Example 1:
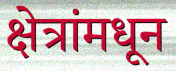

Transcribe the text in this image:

क्षेत्रांमधून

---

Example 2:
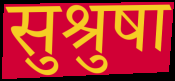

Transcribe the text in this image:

सुश्रुषा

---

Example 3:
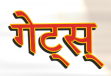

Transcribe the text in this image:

गेट्स्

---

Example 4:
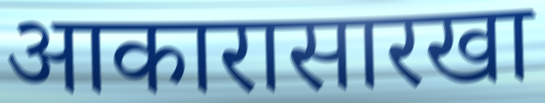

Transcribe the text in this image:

आकारासारखा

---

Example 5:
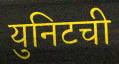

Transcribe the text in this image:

युनिटची